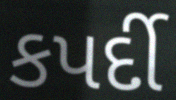
કપર્દી